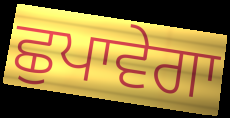
ਛੁਪਾਵੇਗਾ